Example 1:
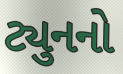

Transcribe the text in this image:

ટ્યુનનો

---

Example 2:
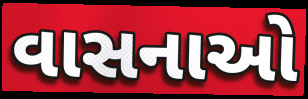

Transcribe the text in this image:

વાસનાઓ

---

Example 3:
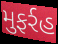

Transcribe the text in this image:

મુફર્રહ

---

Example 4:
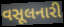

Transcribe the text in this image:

વસૂલનારી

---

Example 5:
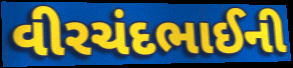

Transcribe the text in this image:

વીરચંદભાઈની